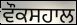
ਵੌਕਸਹਾਲ